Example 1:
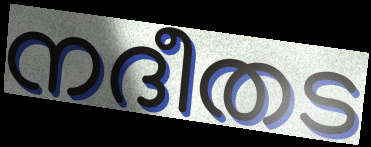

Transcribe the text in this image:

നദീതട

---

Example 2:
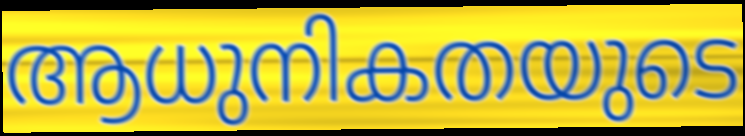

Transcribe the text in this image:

ആധുനികതയുടെ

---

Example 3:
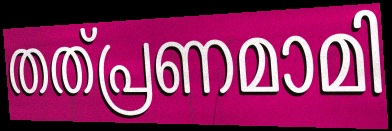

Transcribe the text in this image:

തത്പ്രണമാമി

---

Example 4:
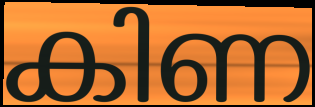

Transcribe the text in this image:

കിണ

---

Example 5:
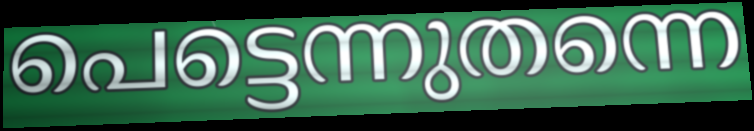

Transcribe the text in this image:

പെട്ടെന്നുതന്നെ